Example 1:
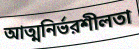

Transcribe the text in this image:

আত্মনির্ভরশীলতা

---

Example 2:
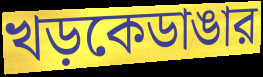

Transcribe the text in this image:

খড়কেডাঙার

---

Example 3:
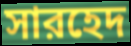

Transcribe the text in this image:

সারহেদ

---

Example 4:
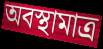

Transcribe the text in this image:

অবস্থামাত্র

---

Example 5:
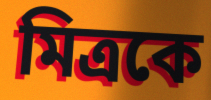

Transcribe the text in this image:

মিত্রকে